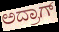
ಅದ್ರಾಗ್